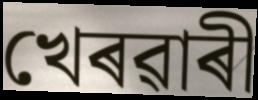
খেৰৱাৰী